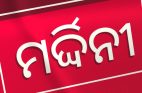
ମର୍ଦ୍ଦିନୀ